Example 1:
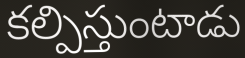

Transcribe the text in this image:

కల్పిస్తుంటాడు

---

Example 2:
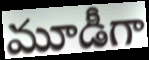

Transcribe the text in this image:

మూడీగా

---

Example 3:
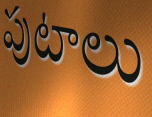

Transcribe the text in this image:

పుటాలు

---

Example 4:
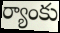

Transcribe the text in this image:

ర్యాంకు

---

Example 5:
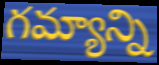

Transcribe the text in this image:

గమ్యాన్ని